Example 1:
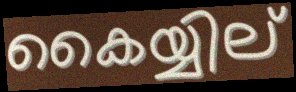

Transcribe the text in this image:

കൈയ്യില്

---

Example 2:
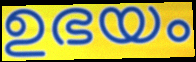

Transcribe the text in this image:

ഉഭയം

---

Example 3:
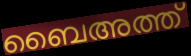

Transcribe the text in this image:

ബൈഅത്ത്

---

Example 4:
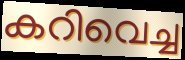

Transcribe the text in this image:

കറിവെച്ച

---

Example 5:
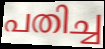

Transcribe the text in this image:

പതിച്ച